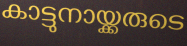
കാട്ടുനായ്ക്കരുടെ